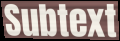
Subtext